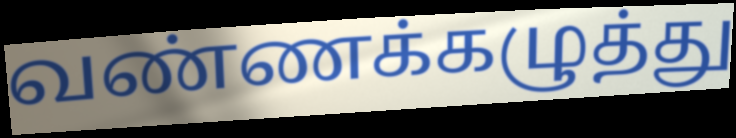
வண்ணக்கழுத்து